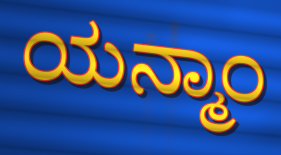
ಯನ್ಮಾಂ